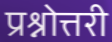
प्रश्नोत्तरी